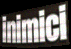
inimici